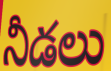
నీడలు